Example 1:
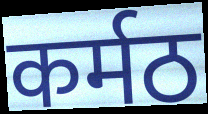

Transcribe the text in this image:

कर्मठ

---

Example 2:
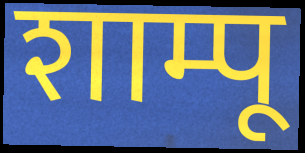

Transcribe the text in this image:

शाम्पू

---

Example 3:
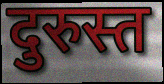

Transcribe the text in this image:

दुरुस्त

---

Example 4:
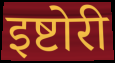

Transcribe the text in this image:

इष्टोरी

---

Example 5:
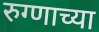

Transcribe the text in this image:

रुग्णाच्या